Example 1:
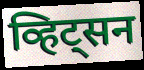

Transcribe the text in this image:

व्हिट्सन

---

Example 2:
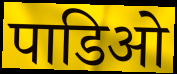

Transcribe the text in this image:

पाडिओ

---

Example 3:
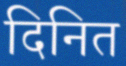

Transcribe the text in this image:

दिनित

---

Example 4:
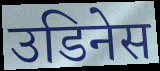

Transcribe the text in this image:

उडिनेस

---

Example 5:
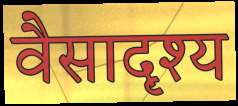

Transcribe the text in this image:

वैसादृश्य